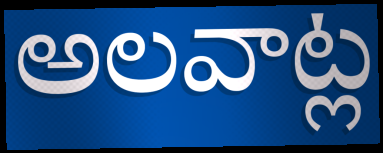
అలవాట్ల